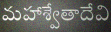
మహాశ్వేతాదేవి